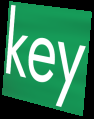
key